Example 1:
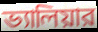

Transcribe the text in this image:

ভ্যালিয়ার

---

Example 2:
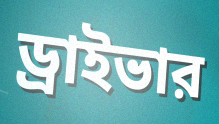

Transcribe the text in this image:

ড্রাইভার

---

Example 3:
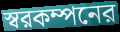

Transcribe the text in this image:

স্বরকম্পনের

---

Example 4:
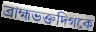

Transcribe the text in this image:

ব্রাহ্মভক্তদিগকে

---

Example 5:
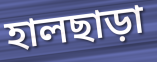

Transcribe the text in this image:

হালছাড়া